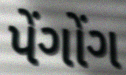
પેંગોંગ